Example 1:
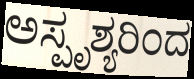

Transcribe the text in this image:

ಅಸ್ಪೃಶ್ಯರಿಂದ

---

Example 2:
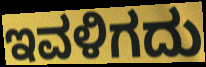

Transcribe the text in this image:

ಇವಳಿಗದು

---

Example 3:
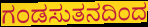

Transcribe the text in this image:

ಗಂಡಸುತನದಿಂದ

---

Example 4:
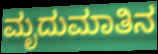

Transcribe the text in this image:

ಮೃದುಮಾತಿನ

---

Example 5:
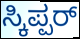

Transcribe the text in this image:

ಸ್ಕಿಪ್ಪರ್